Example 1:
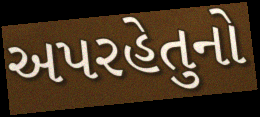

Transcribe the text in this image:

અપરહેતુનો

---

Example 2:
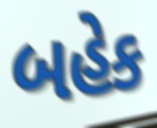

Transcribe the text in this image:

બહેક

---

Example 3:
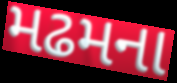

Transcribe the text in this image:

મઢમના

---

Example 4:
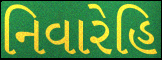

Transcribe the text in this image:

નિવારેહિ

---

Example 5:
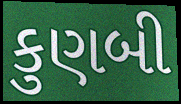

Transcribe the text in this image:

કુણબી